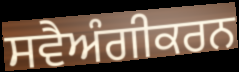
ਸਵੈਅੰਗੀਕਰਨ